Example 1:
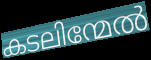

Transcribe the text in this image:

കടലിന്മേൽ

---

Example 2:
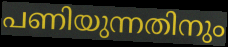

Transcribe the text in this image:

പണിയുന്നതിനും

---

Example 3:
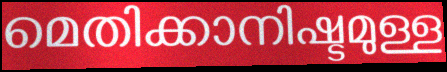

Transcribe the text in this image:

മെതിക്കാനിഷ്ടമുള്ള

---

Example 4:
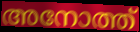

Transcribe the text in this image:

അനോത്ത്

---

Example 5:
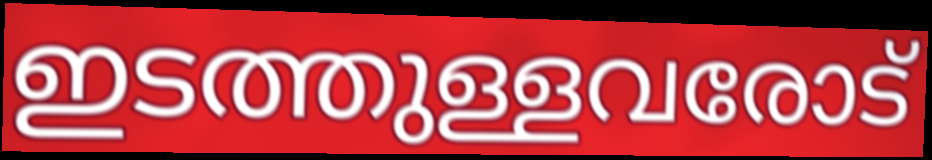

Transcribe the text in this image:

ഇടത്തുള്ളവരോട്